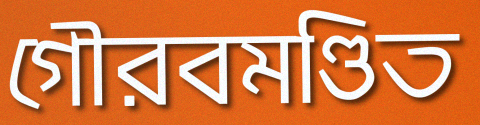
গৌরবমণ্ডিত